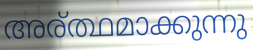
അര്ത്ഥമാക്കുന്നു